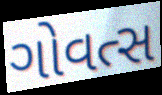
ગોવત્સ